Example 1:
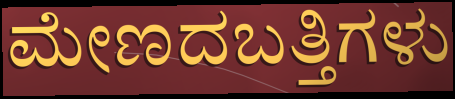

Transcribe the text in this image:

ಮೇಣದಬತ್ತಿಗಳು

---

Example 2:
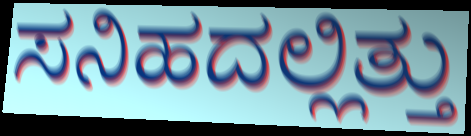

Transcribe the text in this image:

ಸನಿಹದಲ್ಲಿತ್ತು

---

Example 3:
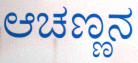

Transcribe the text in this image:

ಆಚಣ್ಣನ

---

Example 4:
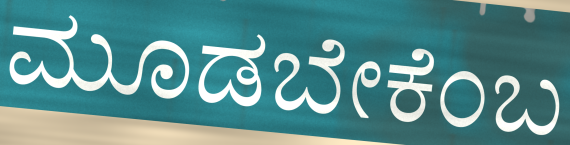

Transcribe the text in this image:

ಮೂಡಬೇಕೆಂಬ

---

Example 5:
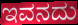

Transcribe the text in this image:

ಇವನದು